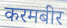
करमबीर